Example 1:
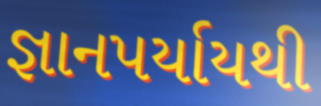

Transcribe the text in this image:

જ્ઞાનપર્યાયથી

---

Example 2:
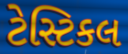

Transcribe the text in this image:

ટેસ્ટિકલ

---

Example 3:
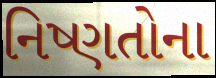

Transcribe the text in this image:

નિષ્ણતોના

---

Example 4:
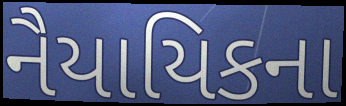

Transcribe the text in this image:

નૈયાયિકના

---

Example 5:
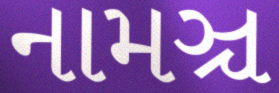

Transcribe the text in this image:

નામઞ્ચ